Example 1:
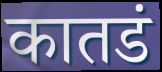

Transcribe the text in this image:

कातडं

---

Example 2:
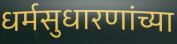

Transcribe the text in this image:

धर्मसुधारणांच्या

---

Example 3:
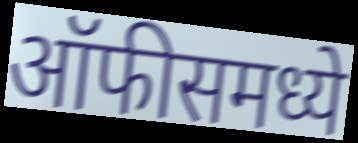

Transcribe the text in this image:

ऑफीसमध्ये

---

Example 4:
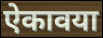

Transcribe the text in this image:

ऐकावया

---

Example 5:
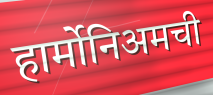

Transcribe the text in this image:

हार्मोनिअमची